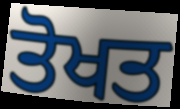
ਤੋਖਤ